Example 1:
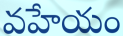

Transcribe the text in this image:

వహేయం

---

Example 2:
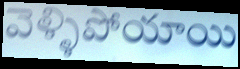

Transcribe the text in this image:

వెళ్ళిపోయాయి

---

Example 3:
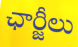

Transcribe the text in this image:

ఛార్జీలు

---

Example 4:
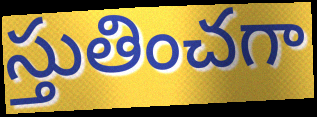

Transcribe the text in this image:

స్తుతించగా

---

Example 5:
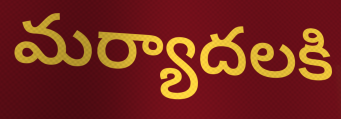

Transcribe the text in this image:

మర్యాదలకి